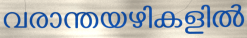
വരാന്തയഴികളിൽ